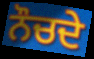
ਨੌਚਦੇ